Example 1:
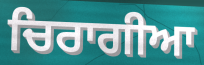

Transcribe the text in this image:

ਚਿਰਾਗੀਆ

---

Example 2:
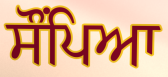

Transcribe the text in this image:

ਸੌਂਪਿਆ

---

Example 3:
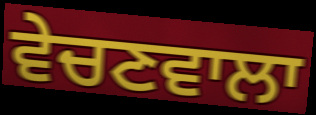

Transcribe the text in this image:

ਵੇਚਣਵਾਲਾ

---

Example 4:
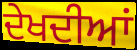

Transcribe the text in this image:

ਦੇਖਦੀਆਂ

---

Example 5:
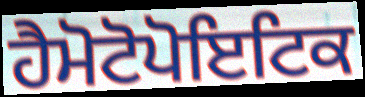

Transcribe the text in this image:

ਹੈਮੋਟੋਪੋਇਟਿਕ